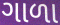
ગાળા